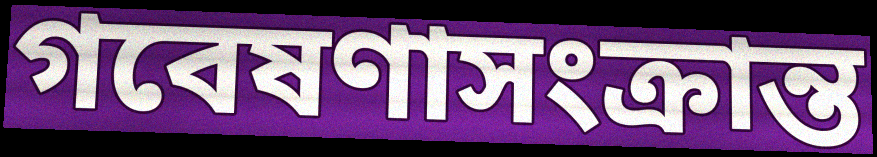
গবেষণাসংক্রান্ত